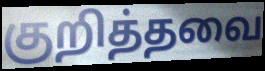
குறித்தவை